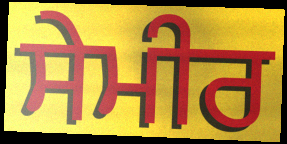
ਸੇਮੀਰ